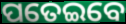
ପତେଇବେ